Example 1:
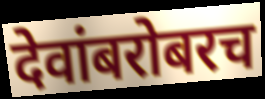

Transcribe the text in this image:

देवांबरोबरच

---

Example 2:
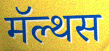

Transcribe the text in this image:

मॅल्थस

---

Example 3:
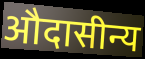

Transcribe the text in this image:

औदासीन्य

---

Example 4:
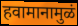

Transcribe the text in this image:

हवामानामुळं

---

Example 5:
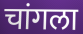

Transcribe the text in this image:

चांगला